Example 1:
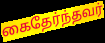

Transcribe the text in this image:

கைதேர்ந்தவர்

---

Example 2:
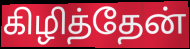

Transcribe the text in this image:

கிழித்தேன்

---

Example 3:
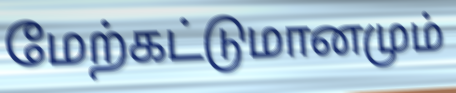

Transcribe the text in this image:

மேற்கட்டுமானமும்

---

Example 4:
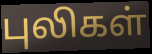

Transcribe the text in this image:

புலிகள்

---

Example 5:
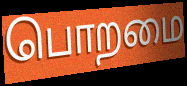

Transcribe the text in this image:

பொறமை